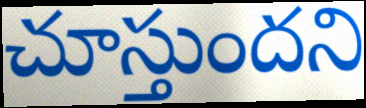
చూస్తుందని